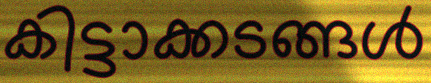
കിട്ടാക്കടങ്ങൾ